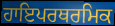
ਹਾਇਪਰਥਰਮਿਕ